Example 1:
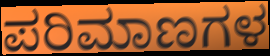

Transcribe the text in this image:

ಪರಿಮಾಣಗಳ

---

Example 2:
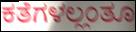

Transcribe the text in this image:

ಕತೆಗಳಲ್ಲಂತೂ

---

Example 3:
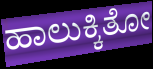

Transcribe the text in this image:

ಹಾಲುಕ್ಕಿತೋ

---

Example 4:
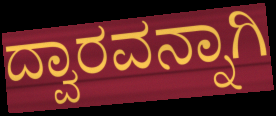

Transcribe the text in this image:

ದ್ವಾರವನ್ನಾಗಿ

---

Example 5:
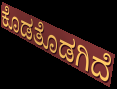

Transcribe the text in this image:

ಕೊಡತೊಡಗಿದೆ